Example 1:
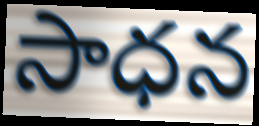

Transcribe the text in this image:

సాధన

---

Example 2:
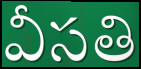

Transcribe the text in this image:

వీసతి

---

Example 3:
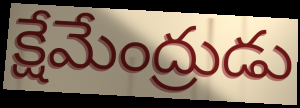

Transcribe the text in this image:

క్షేమేంద్రుడు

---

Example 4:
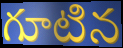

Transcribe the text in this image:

గూటిన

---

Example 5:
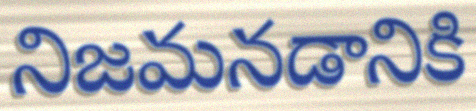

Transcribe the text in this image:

నిజమనడానికి